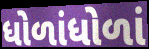
ધોળાંધોળાં